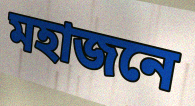
মহাজনে